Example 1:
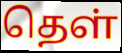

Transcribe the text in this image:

தெள்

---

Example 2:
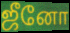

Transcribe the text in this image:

ஜீனோ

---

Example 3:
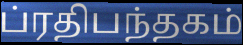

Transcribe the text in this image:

ப்ரதிபந்தகம்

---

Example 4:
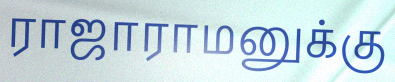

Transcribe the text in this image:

ராஜாராமனுக்கு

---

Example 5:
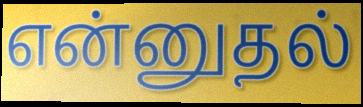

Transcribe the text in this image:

என்னுதல்